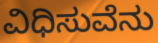
ವಿಧಿಸುವೆನು